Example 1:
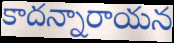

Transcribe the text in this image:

కాదన్నారాయన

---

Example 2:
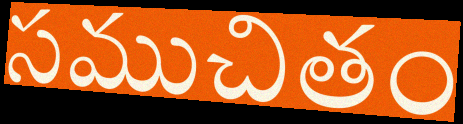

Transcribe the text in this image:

సముచితం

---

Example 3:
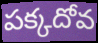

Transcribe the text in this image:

పక్కదోవ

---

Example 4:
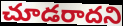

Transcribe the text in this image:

చూడరాదని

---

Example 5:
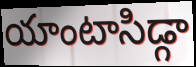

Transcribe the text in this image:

యాంటాసిడ్గా